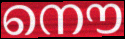
നൌ